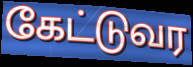
கேட்டுவர